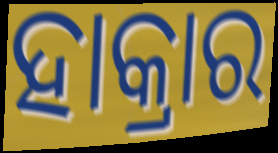
ହାକ୍ରାର